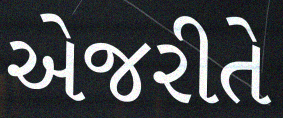
એજરીતે